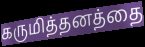
கருமித்தனத்தை